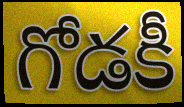
గోడకీ